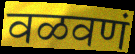
वळवणं